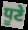
ਧੂਣੇ